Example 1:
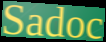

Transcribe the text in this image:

Sadoc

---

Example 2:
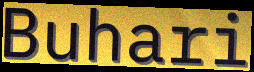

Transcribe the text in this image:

Buhari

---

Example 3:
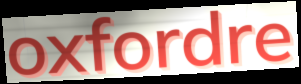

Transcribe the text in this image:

oxfordre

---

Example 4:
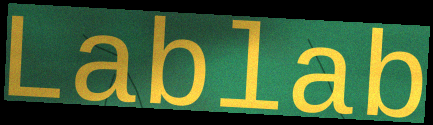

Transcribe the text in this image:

Lablab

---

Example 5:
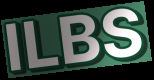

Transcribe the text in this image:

ILBS